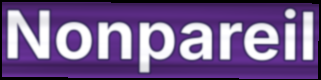
Nonpareil